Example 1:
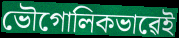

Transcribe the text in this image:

ভৌগোলিকভাৱেই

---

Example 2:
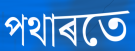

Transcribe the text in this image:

পথাৰতে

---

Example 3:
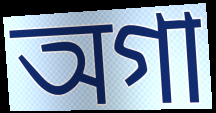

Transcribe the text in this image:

অগা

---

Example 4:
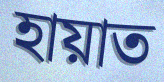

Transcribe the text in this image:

হায়াত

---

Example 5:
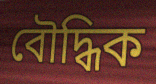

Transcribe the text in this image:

বৌদ্ধিক